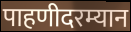
पाहणीदरम्यान